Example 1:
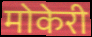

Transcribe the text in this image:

मोकेरी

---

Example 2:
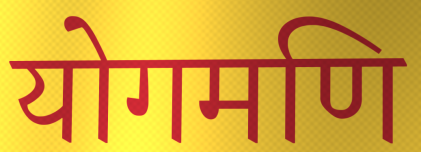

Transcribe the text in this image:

योगमणि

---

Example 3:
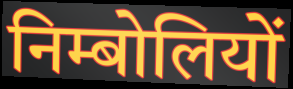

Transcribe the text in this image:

निम्बोलियों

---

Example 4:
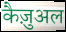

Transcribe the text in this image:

कैज़ुअल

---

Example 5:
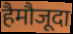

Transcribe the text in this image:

हैमौजूदा